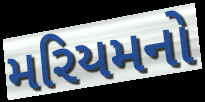
મરિયમનો